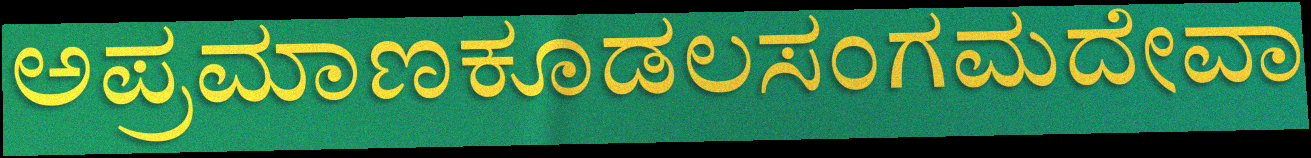
ಅಪ್ರಮಾಣಕೂಡಲಸಂಗಮದೇವಾ